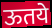
ऊतये